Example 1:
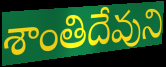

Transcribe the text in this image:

శాంతిదేవుని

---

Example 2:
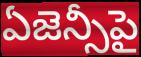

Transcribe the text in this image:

ఏజెన్సీపై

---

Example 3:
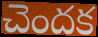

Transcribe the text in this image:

చెందక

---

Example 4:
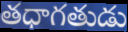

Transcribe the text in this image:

తధాగతుడు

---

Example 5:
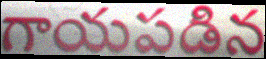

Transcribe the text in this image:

గాయపడిన